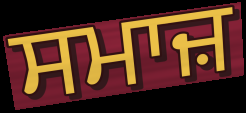
ਸਮਾਜ਼